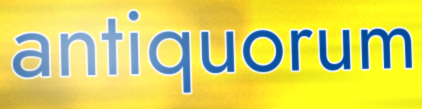
antiquorum